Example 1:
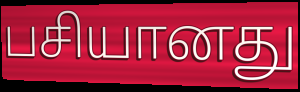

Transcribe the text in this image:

பசியானது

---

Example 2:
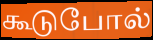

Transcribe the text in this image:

கூடுபோல்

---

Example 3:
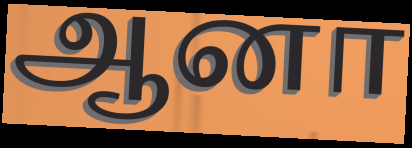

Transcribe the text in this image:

ஆனா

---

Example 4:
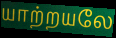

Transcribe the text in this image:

யாற்றயலே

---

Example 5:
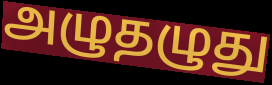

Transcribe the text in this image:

அழுதழுது